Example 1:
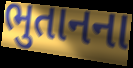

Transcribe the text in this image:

ભુતાનના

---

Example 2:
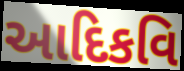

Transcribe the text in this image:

આદિકવિ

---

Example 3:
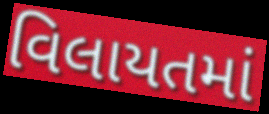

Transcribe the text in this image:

વિલાયતમાં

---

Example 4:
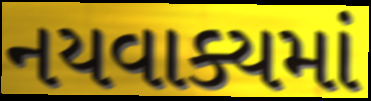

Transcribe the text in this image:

નયવાક્યમાં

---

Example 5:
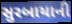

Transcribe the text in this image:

સુરબાયાની